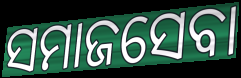
ସମାଜସେବା